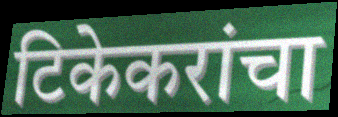
टिकेकरांचा